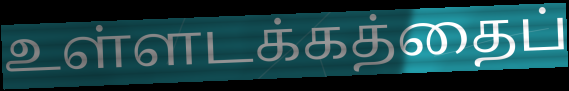
உள்ளடக்கத்தைப்